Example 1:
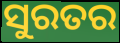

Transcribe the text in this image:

ସୁରତର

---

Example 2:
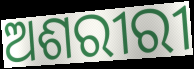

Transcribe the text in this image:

ଅଶରୀରୀ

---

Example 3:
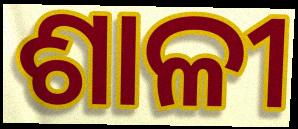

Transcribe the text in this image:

ଶାଳୀ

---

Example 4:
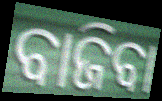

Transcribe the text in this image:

ବାଜିବା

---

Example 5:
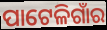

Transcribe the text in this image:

ପାଟେଳିଗାଁର